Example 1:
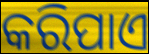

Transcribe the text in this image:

କରିପାଏ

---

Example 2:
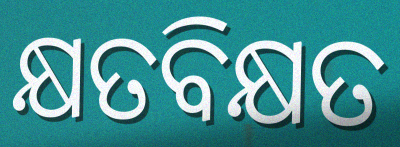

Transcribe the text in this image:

କ୍ଷତବିକ୍ଷତ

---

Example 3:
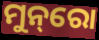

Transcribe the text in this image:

ମୁନ୍‌ରୋ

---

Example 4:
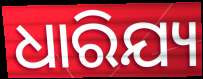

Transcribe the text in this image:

ଧାରିଯ୍ୟ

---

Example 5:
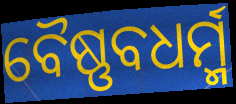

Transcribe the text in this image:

ବୈଷ୍ଣବଧର୍ମ୍ମ